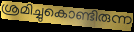
ശ്രമിച്ചുകൊണ്ടിരുന്ന